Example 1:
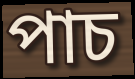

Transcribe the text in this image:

পাচ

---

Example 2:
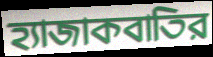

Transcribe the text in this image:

হ্যাজাকবাতির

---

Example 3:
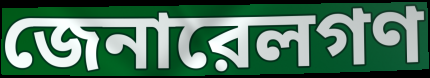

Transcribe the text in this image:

জেনারেলগণ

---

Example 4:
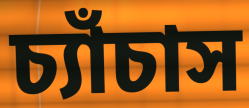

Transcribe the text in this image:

চ্যাঁচাস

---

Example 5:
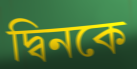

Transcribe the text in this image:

দ্বিনকে